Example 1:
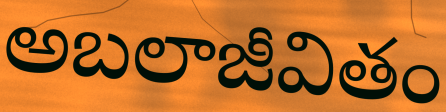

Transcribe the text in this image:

అబలాజీవితం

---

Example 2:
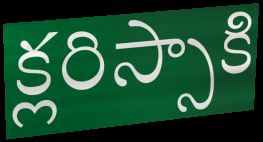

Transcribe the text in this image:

క్లరిస్సాకి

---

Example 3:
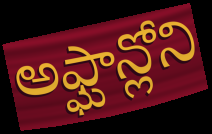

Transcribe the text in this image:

అఫ్ఘాన్లోని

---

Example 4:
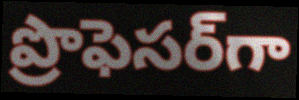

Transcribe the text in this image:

ప్రొఫెసర్‌గా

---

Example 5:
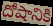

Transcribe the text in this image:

దోషానికి